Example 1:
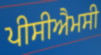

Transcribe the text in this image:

ਪੀਸੀਐਮਸੀ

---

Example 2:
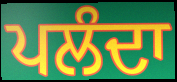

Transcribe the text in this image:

ਪਲੰਦਾ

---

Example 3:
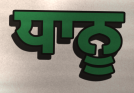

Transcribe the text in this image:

ਧਾਨੂ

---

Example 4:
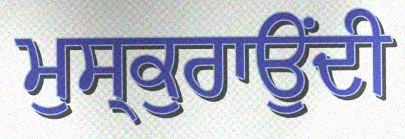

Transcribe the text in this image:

ਮੁਸ੍ਕੁਰਾਉਂਦੀ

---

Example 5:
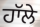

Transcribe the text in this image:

ਹਾੱਲੇ